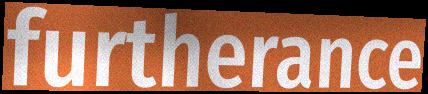
furtherance